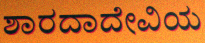
ಶಾರದಾದೇವಿಯ